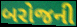
બરોજની